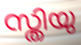
സ്തിയു